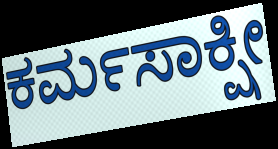
ಕರ್ಮಸಾಕ್ಷೀ